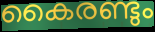
കൈരണ്ടും